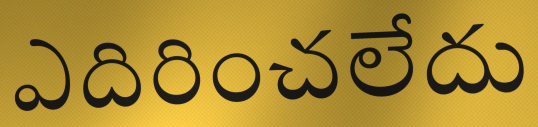
ఎదిరించలేదు